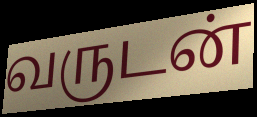
வருடன்